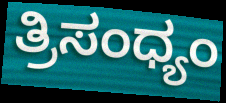
ತ್ರಿಸಂಧ್ಯಂ